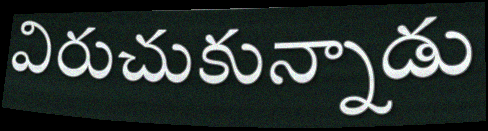
విరుచుకున్నాడు